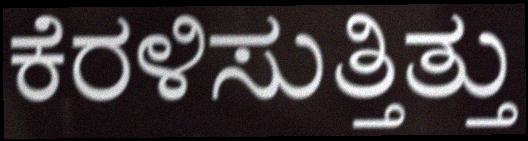
ಕೆರಳಿಸುತ್ತಿತ್ತು